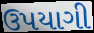
ઉપયાગી